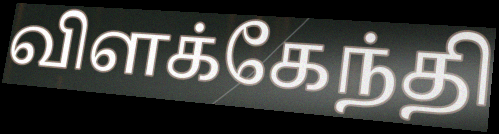
விளக்கேந்தி